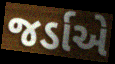
જર્ડાએ